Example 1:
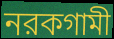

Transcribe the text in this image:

নরকগামী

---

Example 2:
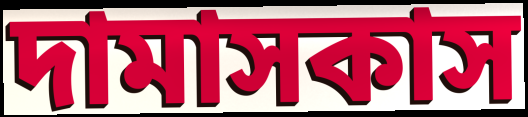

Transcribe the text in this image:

দামাসকাস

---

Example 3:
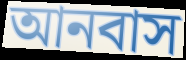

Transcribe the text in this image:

আনবাস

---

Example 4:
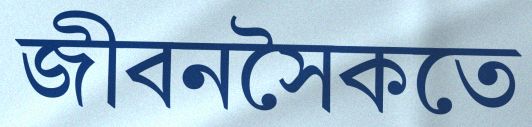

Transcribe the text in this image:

জীবনসৈকতে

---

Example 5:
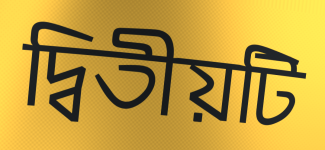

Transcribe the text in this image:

দ্বিতীয়টি